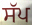
ਸੱਪ